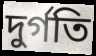
দুৰ্গতি